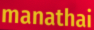
manathai